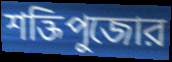
শক্তিপুজোর